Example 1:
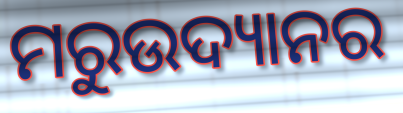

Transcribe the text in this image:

ମରୁଉଦ୍ୟାନର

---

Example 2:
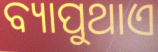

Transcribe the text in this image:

ବ୍ୟାପୁଥାଏ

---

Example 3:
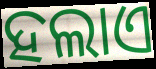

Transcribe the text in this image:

ହଲାଏ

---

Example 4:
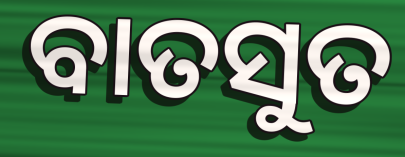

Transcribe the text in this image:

ବାତସୁତ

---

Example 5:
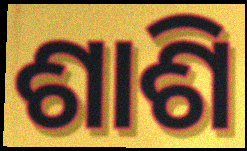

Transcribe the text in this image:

ଶାଶି